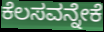
ಕೆಲಸವನ್ನೇಕೆ